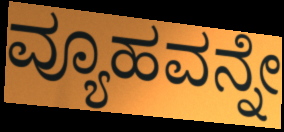
ವ್ಯೂಹವನ್ನೇ